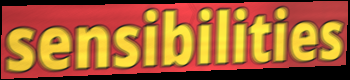
sensibilities